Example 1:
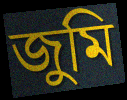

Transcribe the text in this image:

জুমি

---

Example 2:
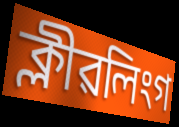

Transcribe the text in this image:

ক্লীৱলিংগ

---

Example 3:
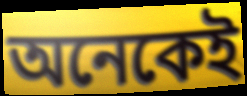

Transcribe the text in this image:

অনেকেই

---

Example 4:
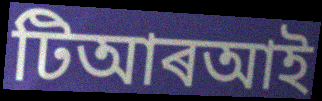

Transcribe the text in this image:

টিআৰআই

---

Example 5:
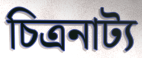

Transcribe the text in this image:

চিত্ৰনাট্য